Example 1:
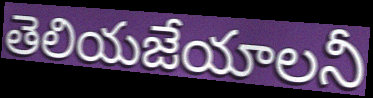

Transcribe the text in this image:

తెలియజేయాలనీ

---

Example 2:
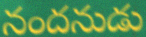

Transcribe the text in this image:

నందనుడు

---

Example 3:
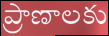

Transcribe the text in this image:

ప్రాణాలకు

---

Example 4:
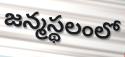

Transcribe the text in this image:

జన్మస్థలంలో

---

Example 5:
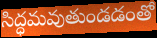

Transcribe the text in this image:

సిద్ధమవుతుండడంతో